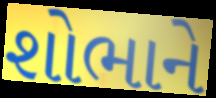
શોભાને